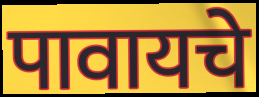
पावायचे